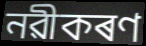
নৱীকৰণ